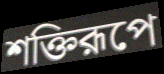
শক্তিরূপে